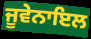
ਜੂਵੇਨਾਇਲ